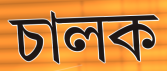
চালক